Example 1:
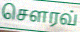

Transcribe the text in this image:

சௌரவ்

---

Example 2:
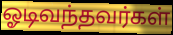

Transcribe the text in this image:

ஓடிவந்தவர்கள்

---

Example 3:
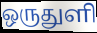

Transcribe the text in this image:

ஒருதுளி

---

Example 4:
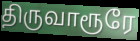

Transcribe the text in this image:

திருவாரூரே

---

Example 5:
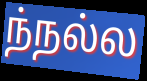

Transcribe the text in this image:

ந்நல்ல